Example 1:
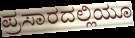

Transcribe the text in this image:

ಪ್ರಸಾರದಲ್ಲಿಯೂ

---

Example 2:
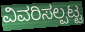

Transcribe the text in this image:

ವಿವರಿಸಲ್ಪಟ್ಟ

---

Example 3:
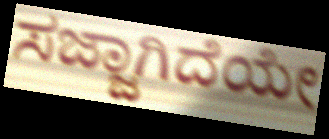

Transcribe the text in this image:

ಸಜ್ಜಾಗಿದೆಯೇ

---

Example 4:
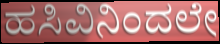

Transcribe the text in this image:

ಹಸಿವಿನಿಂದಲೇ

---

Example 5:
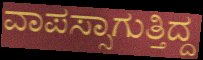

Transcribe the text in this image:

ವಾಪಸ್ಸಾಗುತ್ತಿದ್ದ